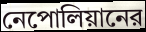
নেপোলিয়ানের